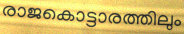
രാജകൊട്ടാരത്തിലും